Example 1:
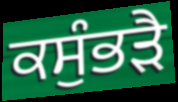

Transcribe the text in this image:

ਕਸੁੰਭੜੈ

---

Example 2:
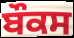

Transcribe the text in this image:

ਬੌਕਸ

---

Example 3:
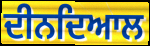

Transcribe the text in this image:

ਦੀਨਦਿਆਲ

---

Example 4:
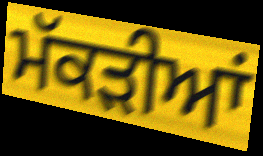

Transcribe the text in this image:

ਮੱਕੜੀਆਂ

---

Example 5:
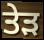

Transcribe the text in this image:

ਤੇੜ